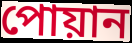
পোয়ান